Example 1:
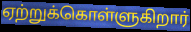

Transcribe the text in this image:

ஏற்றுக்கொள்ளுகிறார்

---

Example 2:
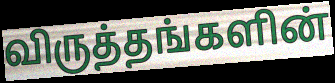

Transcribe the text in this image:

விருத்தங்களின்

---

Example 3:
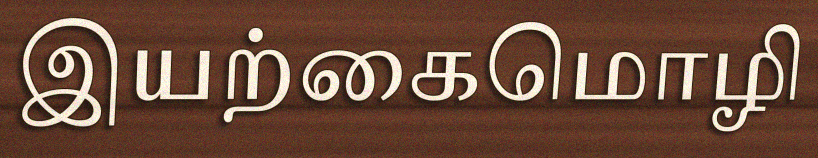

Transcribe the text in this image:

இயற்கைமொழி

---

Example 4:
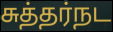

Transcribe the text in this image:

சுத்தர்நட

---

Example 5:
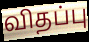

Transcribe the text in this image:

விதப்பு